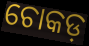
ଚୋକଡ଼